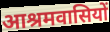
आश्रमवासियों